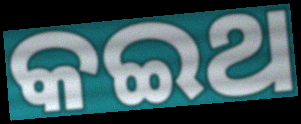
କଇଥ